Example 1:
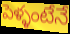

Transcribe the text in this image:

పెళ్ళంటేనే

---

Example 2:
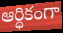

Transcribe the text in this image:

ఆర్ధికంగా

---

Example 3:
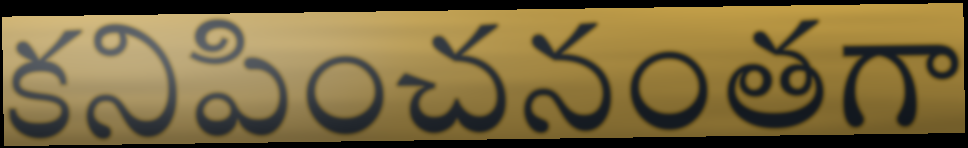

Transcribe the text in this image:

కనిపించనంతగా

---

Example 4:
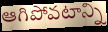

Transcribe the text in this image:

ఆగిపోవటాన్ని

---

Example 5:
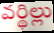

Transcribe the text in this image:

వర్థిల్లు